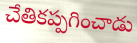
చేతికప్పగించాడు